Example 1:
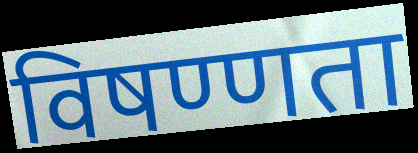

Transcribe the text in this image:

विषण्णता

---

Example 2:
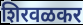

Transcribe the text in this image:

शिरवळकर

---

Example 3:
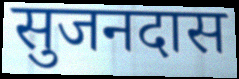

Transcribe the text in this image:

सुजनदास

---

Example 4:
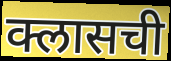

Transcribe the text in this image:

क्लासची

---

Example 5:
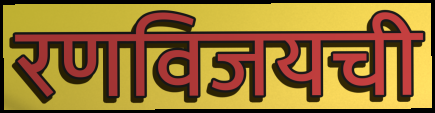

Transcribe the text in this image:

रणविजयची